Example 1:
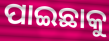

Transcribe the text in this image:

ପାଇଛାକୁ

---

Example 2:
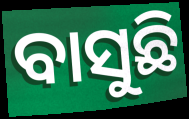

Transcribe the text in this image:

ବାସୁଛି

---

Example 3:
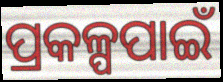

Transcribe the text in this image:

ପ୍ରକଳ୍ପପାଇଁ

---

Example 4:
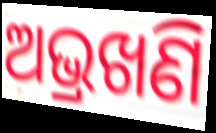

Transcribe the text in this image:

ଅଭ୍ରଖଣି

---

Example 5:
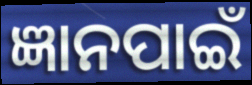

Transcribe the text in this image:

ଜ୍ଞାନପାଇଁ